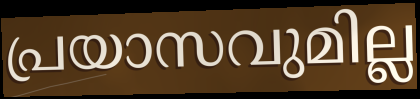
പ്രയാസവുമില്ല